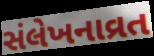
સંલેખનાવ્રત